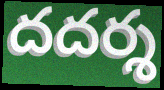
దదర్శ